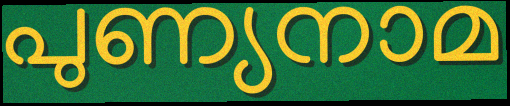
പുണ്യനാമ